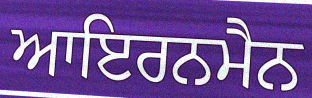
ਆਇਰਨਮੈਨ